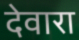
देवारा